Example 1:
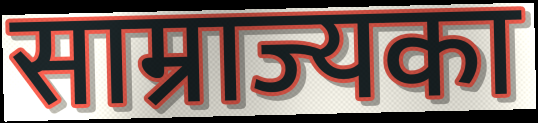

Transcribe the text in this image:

साम्राज्यका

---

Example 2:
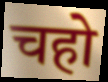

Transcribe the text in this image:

चहो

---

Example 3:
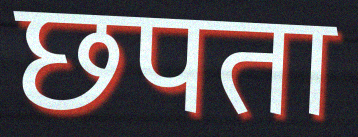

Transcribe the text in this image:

छपता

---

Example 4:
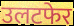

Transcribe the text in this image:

उलटफेर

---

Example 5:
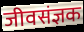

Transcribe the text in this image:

जीवसंज्ञक